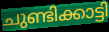
ചുണ്ടിക്കാട്ടി